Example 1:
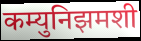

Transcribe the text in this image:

कम्युनिझमशी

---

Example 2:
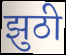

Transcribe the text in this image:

झुठी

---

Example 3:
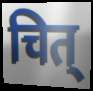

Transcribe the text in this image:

चित्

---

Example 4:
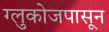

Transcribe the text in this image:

ग्लुकोजपासून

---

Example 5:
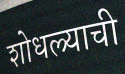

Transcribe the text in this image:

शोधल्याची